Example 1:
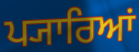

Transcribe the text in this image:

ਪ੍ਯਾਰਿਆਂ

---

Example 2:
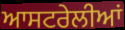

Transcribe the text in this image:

ਆਸਟਰੇਲੀਆਂ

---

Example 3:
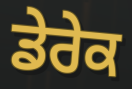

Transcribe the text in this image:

ਡੇਰੇਕ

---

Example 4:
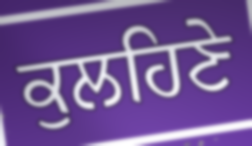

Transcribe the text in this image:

ਕੁਲਹਿਣੇ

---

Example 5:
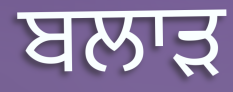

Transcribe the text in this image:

ਬਲਾੜ